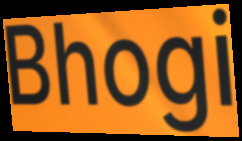
Bhogi